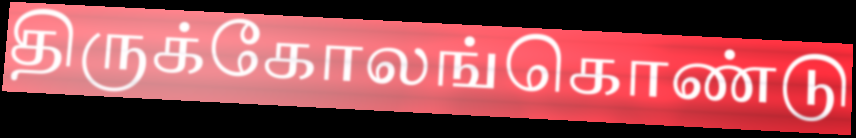
திருக்கோலங்கொண்டு